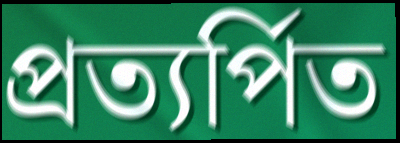
প্রত্যর্পিত